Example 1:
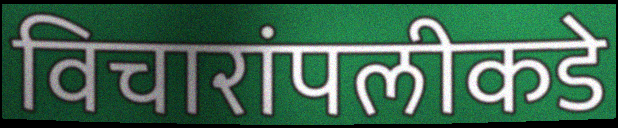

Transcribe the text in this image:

विचारांपलीकडे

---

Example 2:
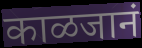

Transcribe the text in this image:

काळजानं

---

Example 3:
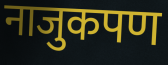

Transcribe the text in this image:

नाजुकपण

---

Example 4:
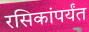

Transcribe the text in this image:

रसिकांपर्यंत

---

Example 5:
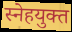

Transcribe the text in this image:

स्नेहयुक्त